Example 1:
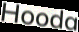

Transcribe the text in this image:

Hooda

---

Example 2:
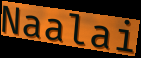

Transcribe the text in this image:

Naalai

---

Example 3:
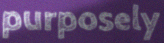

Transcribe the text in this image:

purposely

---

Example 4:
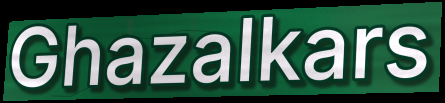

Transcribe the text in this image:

Ghazalkars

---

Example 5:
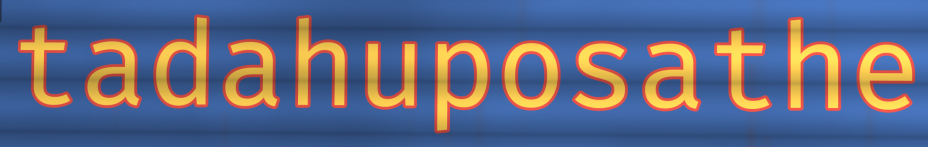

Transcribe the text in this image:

tadahuposathe